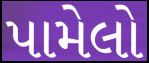
પામેલો